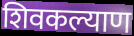
शिवकल्याण